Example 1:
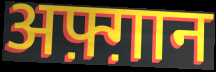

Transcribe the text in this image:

अफ़्ग़ान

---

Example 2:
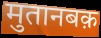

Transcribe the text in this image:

मुतानबक़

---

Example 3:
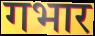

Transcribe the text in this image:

गभार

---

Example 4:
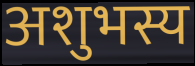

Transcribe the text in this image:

अशुभस्य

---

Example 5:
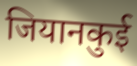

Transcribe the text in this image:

जियानकुई